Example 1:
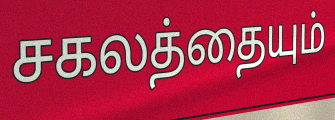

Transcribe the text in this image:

சகலத்தையும்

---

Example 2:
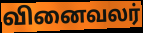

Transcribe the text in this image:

வினைவலர்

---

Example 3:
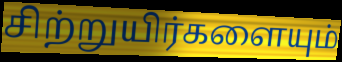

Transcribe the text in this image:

சிற்றுயிர்களையும்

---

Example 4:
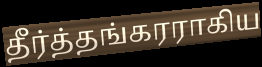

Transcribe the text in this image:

தீர்த்தங்கரராகிய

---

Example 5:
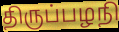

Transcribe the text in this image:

திருப்பழநி